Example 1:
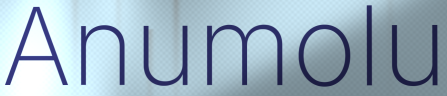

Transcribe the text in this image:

Anumolu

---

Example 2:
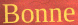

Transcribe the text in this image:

Bonne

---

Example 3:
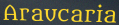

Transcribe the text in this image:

Araucaria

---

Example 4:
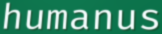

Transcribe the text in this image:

humanus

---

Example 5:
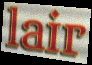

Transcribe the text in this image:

lair